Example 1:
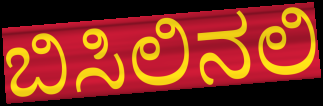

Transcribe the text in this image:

ಬಿಸಿಲಿನಲಿ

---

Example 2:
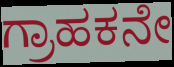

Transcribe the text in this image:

ಗ್ರಾಹಕನೇ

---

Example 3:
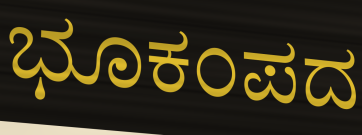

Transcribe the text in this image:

ಭೂಕಂಪದ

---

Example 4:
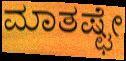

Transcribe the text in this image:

ಮಾತಷ್ಟೇ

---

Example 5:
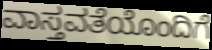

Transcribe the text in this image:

ವಾಸ್ತವತೆಯೊಂದಿಗೆ